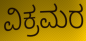
ವಿಕ್ರಮರ